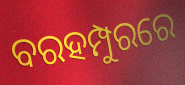
ବରହମ୍ପୁରରେ